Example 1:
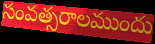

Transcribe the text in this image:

సంవత్సరాలముందు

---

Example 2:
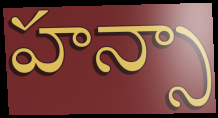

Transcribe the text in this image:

హన్సా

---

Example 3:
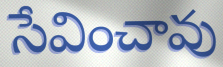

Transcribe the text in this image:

సేవించావు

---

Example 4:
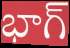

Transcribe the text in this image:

భాగ్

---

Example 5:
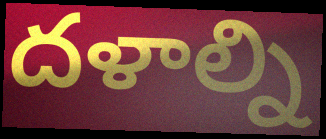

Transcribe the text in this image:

దళాల్ని